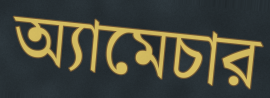
অ্যামেচার